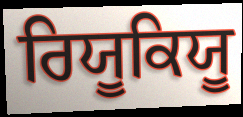
ਰਿਯੂਕਿਯੂ